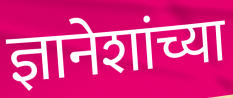
ज्ञानेशांच्या